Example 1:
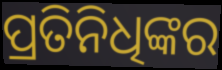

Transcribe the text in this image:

ପ୍ରତିନିଧିଙ୍କର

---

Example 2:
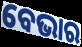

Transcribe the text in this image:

ବେଭାର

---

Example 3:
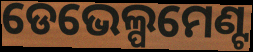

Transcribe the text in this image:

ଡେଭେଲ୍ପମେଣ୍ଟ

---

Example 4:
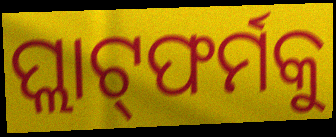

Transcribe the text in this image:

ପ୍ଲାଟ୍‌ଫର୍ମକୁ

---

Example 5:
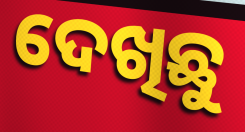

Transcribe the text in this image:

ଦେଖିଛୁ